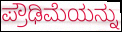
ಪ್ರೌಢಿಮೆಯನ್ನು